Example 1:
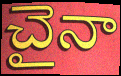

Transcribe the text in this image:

చైనా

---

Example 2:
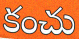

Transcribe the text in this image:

కంచు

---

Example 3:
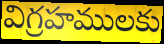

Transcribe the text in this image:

విగ్రహములకు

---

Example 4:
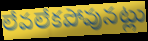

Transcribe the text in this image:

లేవలేకపోవునట్లు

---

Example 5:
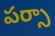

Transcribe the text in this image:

పర్సా